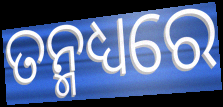
ତନ୍ମଧ୍ୟରେ